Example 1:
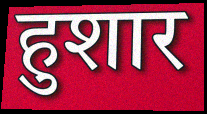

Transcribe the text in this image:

हुशार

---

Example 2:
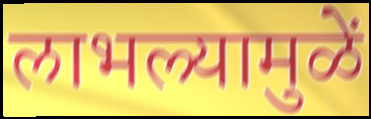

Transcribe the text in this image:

लाभल्यामुळें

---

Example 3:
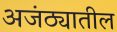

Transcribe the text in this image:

अजंठ्यातील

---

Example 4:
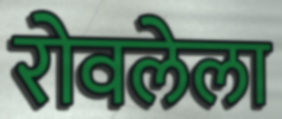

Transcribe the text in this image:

रोवलेला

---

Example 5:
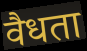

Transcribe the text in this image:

वैधता